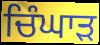
ਚਿੰਘਾੜ